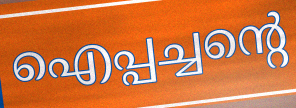
ഐപ്പച്ചന്റെ